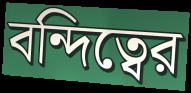
বন্দিত্বের